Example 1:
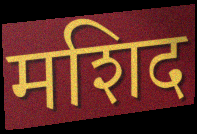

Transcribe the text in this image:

मशिद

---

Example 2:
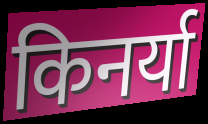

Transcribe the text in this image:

किनर्या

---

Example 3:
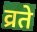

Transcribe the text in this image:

व्रते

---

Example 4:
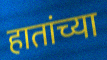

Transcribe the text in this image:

हातांच्या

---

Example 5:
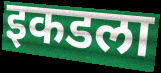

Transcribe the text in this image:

इकडला